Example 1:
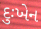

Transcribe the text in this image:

દુઃખેન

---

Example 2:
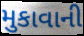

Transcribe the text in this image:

મુકાવાની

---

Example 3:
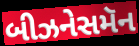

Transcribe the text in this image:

બીઝનેસમૅન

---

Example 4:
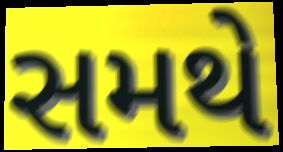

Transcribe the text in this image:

સમથે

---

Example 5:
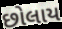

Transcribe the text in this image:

છોલાય